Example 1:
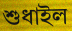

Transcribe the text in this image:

শুধাইল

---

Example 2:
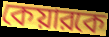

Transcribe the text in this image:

কেয়ারকে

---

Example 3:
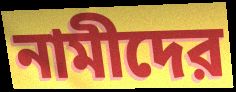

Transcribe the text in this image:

নামীদের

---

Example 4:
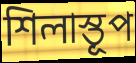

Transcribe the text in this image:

শিলাস্তূপ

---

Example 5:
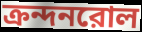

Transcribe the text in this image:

ক্রন্দনরোল